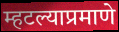
म्हटल्याप्रमाणे